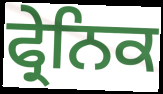
ਫ੍ਰੇਨਿਕ